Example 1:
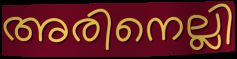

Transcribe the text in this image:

അരിനെല്ലി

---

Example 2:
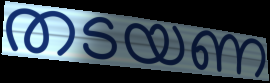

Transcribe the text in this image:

തടയണ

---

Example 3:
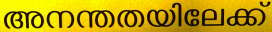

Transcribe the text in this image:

അനന്തതയിലേക്ക്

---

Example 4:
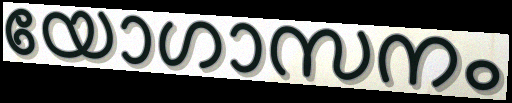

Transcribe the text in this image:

യോഗാസനം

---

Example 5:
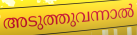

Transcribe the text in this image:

അടുത്തുവന്നാൽ